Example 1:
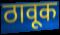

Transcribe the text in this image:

ठावूक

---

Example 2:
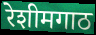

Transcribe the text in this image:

रेशीमगाठ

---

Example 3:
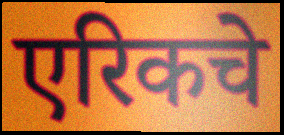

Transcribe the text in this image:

एरिकचे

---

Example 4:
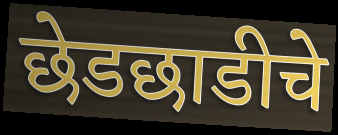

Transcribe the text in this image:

छेडछाडीचे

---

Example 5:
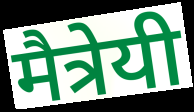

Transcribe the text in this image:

मैत्रेयी